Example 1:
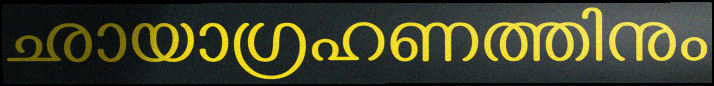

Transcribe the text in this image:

ഛായാഗ്രഹണത്തിനും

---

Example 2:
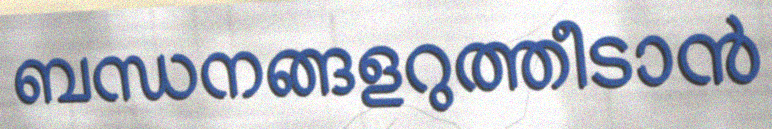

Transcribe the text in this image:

ബന്ധനങ്ങളറുത്തീടാൻ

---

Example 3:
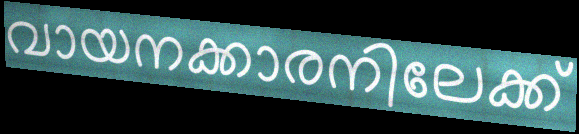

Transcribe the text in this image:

വായനക്കാരനിലേക്ക്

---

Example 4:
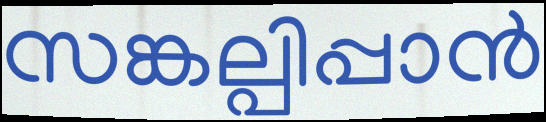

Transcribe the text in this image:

സങ്കല്പിപ്പാൻ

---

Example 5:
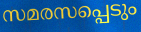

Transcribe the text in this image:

സമരസപ്പെടും